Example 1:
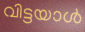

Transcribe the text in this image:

വിട്ടയാൾ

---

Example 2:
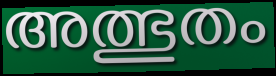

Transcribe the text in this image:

അത്ഭുതം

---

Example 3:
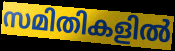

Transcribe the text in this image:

സമിതികളിൽ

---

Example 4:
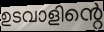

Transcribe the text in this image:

ഉടവാളിന്റെ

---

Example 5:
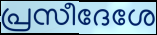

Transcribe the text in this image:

പ്രസീദേശേ